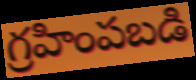
గ్రహింపబడి